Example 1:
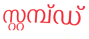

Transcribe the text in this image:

സ്റ്റമ്പ്ഡ്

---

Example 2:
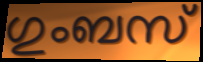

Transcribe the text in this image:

ഗുംബസ്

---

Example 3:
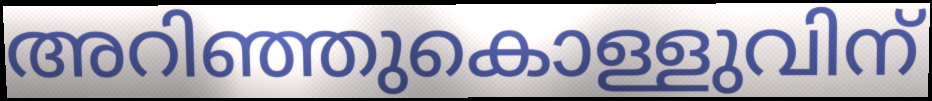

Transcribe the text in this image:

അറിഞ്ഞുകൊള്ളുവിന്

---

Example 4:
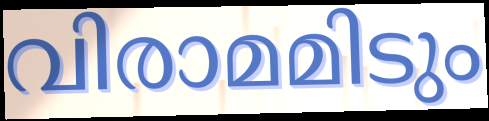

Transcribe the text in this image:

വിരാമമിടും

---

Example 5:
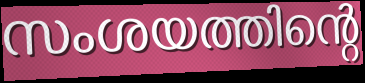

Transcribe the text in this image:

സംശയത്തിന്റെ